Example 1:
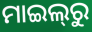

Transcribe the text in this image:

ମାଇଲ୍‌ରୁ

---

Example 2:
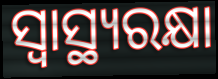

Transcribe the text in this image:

ସ୍ବାସ୍ଥ୍ୟରକ୍ଷା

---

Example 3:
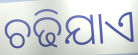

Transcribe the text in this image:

ଚଢିଯାଏ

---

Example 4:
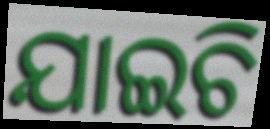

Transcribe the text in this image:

ଯାଇଚି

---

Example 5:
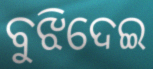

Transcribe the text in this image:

ବୁଝିଦେଇ